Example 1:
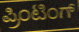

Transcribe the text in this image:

ಪ್ರಿಂಟಿಂಗ್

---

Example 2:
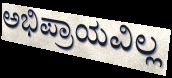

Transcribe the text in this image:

ಅಭಿಪ್ರಾಯವಿಲ್ಲ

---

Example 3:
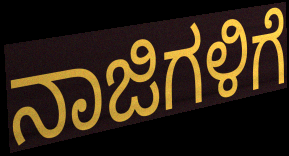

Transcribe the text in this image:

ನಾಜಿಗಳಿಗೆ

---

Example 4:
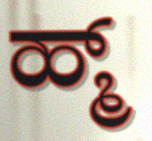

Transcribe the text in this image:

ಹ್ಮ್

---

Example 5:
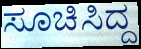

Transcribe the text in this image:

ಸೂಚಿಸಿದ್ದ